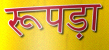
रूपड़ा